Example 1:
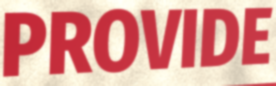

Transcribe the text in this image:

PROVIDE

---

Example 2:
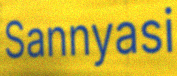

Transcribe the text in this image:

Sannyasi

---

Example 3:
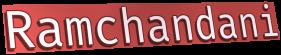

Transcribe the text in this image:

Ramchandani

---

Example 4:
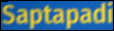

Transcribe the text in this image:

Saptapadi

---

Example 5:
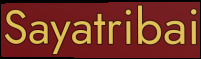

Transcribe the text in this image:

Sayatribai